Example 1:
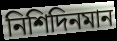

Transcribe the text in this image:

নিশিদিনমান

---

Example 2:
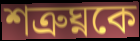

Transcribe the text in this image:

শত্রুঘ্নকে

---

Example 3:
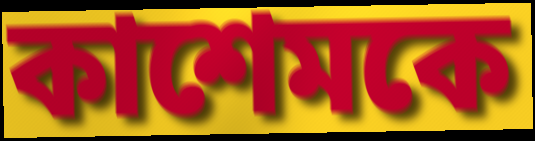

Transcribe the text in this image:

কাশেমকে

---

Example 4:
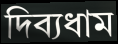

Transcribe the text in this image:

দিব্যধাম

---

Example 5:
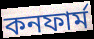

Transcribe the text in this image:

কনফার্ম